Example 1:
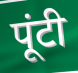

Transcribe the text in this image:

पूंटी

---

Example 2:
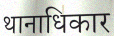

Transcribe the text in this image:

थानाधिकार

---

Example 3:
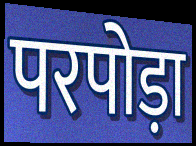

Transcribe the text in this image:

परपोड़ा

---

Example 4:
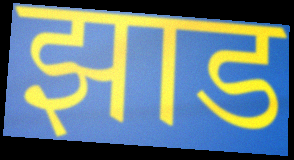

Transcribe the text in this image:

झाड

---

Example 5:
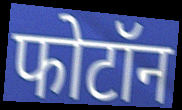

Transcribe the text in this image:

फोटॉन